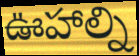
ఊహాల్ని